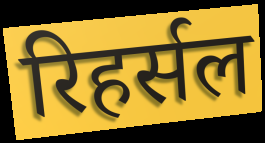
रिहर्सल